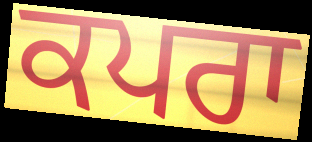
ਕਪਰਾ